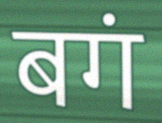
बगं